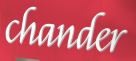
chander